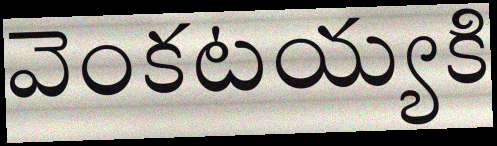
వెంకటయ్యకి